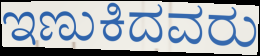
ಇಣುಕಿದವರು